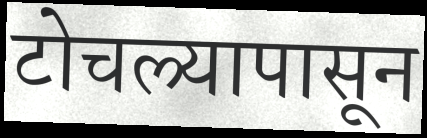
टोचल्यापासून